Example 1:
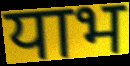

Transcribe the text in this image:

याभ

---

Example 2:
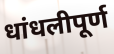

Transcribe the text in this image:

धांधलीपूर्ण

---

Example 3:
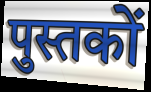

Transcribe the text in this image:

पुस्‍तकों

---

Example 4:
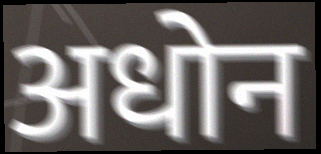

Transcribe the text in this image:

अधोन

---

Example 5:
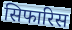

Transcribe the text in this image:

सिफारिस